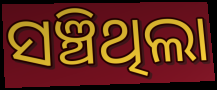
ସଞ୍ଚିଥିଲା